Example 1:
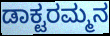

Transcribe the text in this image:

ಡಾಕ್ಟರಮ್ಮನ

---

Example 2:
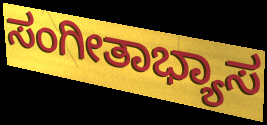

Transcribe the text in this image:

ಸಂಗೀತಾಭ್ಯಾಸ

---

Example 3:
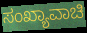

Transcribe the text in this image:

ಸಂಖ್ಯಾವಾಚಿ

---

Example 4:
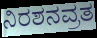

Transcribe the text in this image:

ನಿರಶನವ್ರತ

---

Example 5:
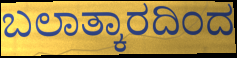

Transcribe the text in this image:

ಬಲಾತ್ಕಾರದಿಂದ